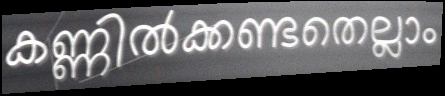
കണ്ണിൽക്കണ്ടതെല്ലാം